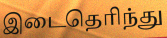
இடைதெரிந்து